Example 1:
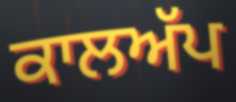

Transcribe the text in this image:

ਕਾਲਅੱਪ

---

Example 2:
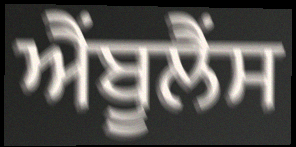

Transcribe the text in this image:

ਐੰਬੂਲੈੰਸ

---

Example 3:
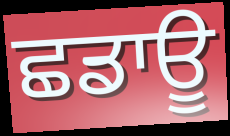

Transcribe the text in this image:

ਛਡਾਊ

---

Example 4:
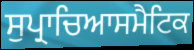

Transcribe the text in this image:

ਸੁਪ੍ਰਾਚਿਆਸਮੈਟਿਕ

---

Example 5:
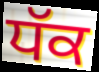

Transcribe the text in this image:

ਧੱਕ